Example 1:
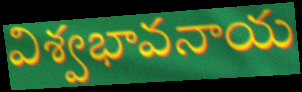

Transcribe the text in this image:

విశ్వభావనాయ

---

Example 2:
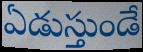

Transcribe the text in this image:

ఏడుస్తుండే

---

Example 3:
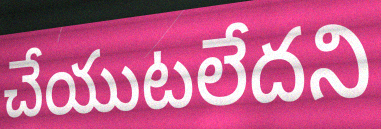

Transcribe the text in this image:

చేయుటలేదని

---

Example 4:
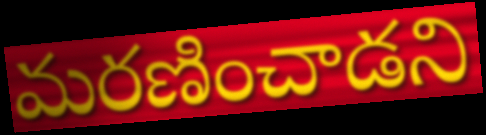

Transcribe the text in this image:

మరణించాడని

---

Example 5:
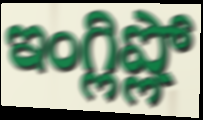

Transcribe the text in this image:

ఇంగ్లిష్లో